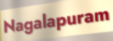
Nagalapuram